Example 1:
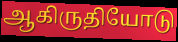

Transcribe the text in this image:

ஆகிருதியோடு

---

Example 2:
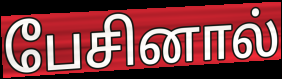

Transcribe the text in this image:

பேசினால்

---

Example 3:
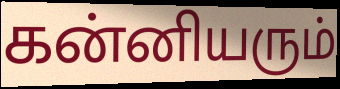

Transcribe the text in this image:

கன்னியரும்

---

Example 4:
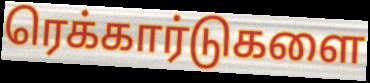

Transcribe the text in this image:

ரெக்கார்டுகளை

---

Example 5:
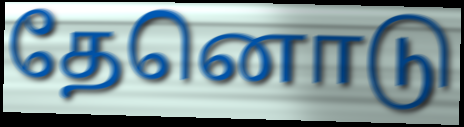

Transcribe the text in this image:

தேனொடு